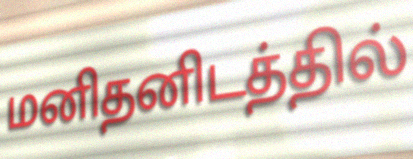
மனிதனிடத்தில்